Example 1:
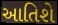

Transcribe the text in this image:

આતિશે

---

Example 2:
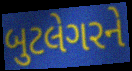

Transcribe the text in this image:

બુટલેગરને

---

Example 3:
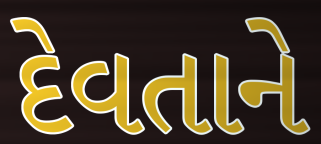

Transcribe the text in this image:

દેવતાને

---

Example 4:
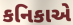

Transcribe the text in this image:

કનિકાએ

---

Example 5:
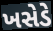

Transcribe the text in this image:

ખસેડે